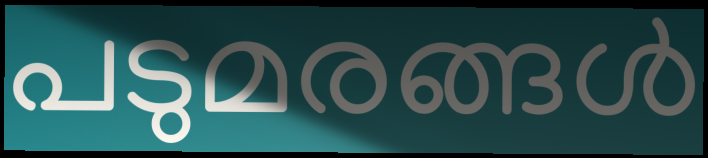
പടുമരങ്ങൾ